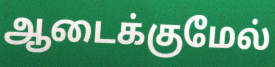
ஆடைக்குமேல்